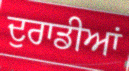
ਦੁਰਾਡੀਆਂ